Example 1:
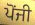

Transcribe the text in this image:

ਪੋਂਜੀ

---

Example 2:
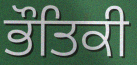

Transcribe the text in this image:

ਭੌਤਿਕੀ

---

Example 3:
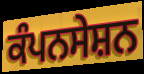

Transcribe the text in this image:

ਕੰਪਨਸੇਸ਼ਨ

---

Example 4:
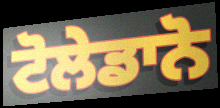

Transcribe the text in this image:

ਟੋਲੇਡਾਨੋ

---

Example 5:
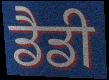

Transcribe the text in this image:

ਡੈਡੀ